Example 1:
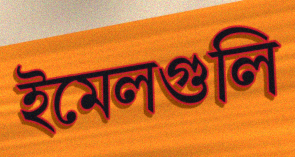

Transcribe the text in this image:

ইমেলগুলি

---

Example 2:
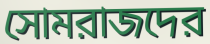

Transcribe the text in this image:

সোমরাজদের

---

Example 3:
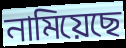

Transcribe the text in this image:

নামিয়েছে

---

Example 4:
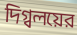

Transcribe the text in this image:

দিগ্বলয়ের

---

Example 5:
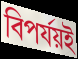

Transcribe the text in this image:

বিপর্যয়ই